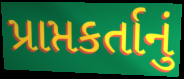
પ્રાપ્તકર્તાનું